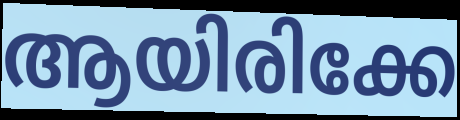
ആയിരിക്കേ